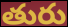
తురు